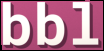
bbl